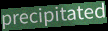
precipitated